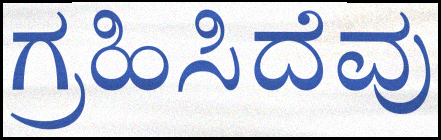
ಗ್ರಹಿಸಿದೆವು